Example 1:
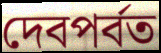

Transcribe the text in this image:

দেবপর্বত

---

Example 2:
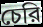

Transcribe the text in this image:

চেরি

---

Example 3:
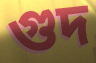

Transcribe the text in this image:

গুদ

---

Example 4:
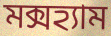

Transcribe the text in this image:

মক্সহ্যাম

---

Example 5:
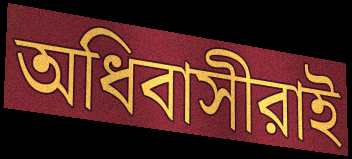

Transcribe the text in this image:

অধিবাসীরাই